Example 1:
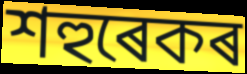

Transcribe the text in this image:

শহুৰেকৰ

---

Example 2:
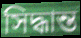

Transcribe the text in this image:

সিদ্ধান্ত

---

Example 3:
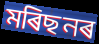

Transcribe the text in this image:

মৰিছনৰ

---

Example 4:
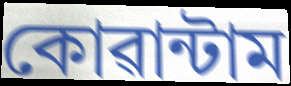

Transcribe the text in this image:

কোৱান্টাম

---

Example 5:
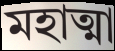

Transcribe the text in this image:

মহাত্মা